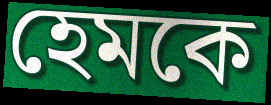
হেমকে